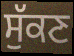
ਸੁੱਕਣ